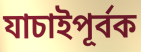
যাচাইপূর্বক